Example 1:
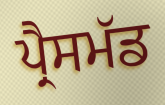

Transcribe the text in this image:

ਪ੍ਰੈਸਮੱਡ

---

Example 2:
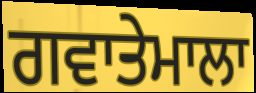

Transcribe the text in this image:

ਗਵਾਤੇਮਾਲਾ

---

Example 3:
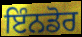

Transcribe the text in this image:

ਇੰਨਡੋਰ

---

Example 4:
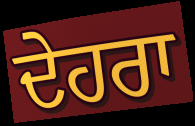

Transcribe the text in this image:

ਦੇਹਰਾ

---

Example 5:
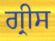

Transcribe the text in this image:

ਗ੍ਰੀਸ